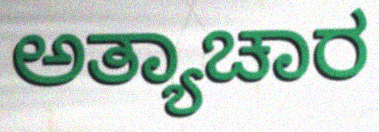
ಅತ್ಯಾಚಾರ